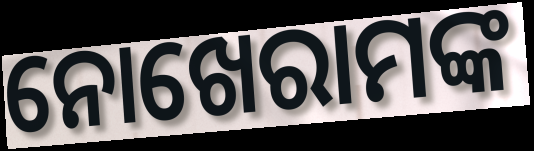
ନୋଖେରାମଙ୍କ